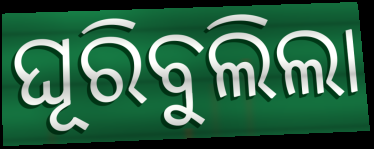
ଘୂରିବୁଲିଲା